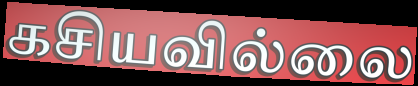
கசியவில்லை